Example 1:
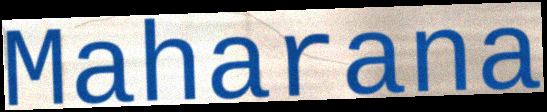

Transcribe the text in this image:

Maharana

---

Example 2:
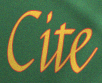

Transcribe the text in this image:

Cite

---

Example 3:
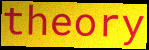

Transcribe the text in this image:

theory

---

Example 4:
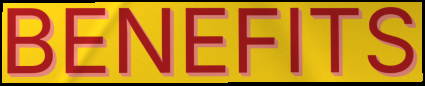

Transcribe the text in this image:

BENEFITS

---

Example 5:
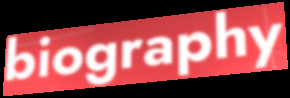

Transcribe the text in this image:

biography